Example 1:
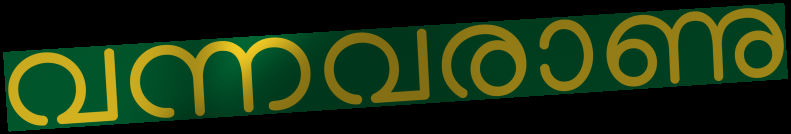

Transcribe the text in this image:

വന്നവരാണു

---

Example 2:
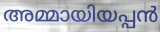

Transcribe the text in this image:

അമ്മായിയപ്പൻ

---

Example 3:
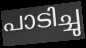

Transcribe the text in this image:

പാടിച്ചു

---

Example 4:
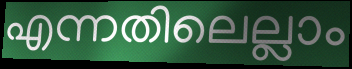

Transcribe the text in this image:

എന്നതിലെല്ലാം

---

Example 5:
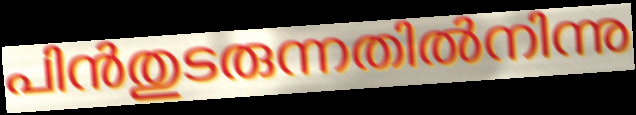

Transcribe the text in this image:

പിൻതുടരുന്നതിൽനിന്നു